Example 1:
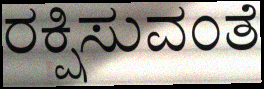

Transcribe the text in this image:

ರಕ್ಷಿಸುವಂತೆ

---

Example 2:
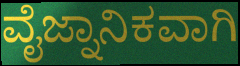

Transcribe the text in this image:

ವೈಜ್ನಾನಿಕವಾಗಿ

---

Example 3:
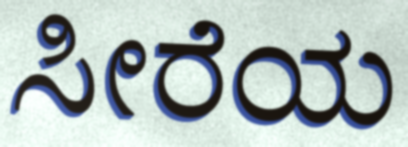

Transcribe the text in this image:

ಸೀರೆಯ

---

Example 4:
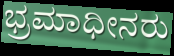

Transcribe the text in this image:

ಭ್ರಮಾಧೀನರು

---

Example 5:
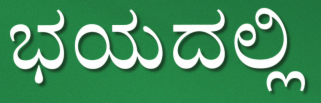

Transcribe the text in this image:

ಭಯದಲ್ಲಿ